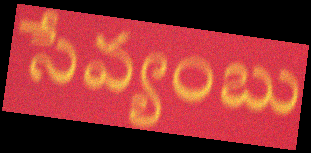
సేవ్యంబు